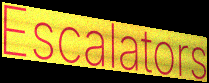
Escalators